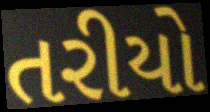
તરીયો